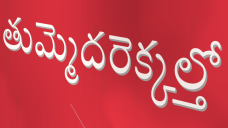
తుమ్మెదరెక్కల్తో